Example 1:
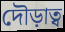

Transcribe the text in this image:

দৌড়াত্ব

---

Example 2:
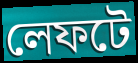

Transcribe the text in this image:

লেফটে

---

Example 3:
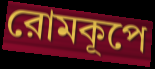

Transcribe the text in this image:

রোমকূপে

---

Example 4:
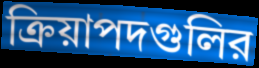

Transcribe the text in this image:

ক্রিয়াপদগুলির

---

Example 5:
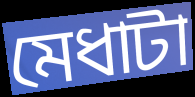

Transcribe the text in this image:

মেধাটা